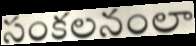
సంకలనంలా